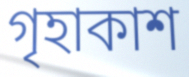
গৃহাকাশ